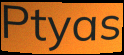
Ptyas